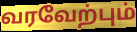
வரவேற்பும்